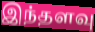
இந்தளவு